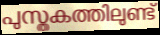
പുസ്തകത്തിലുണ്ട്